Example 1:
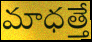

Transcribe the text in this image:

మాధత్తే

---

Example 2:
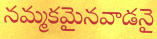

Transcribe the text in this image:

నమ్మకమైనవాడనై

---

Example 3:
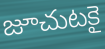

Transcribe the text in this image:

జూచుటకై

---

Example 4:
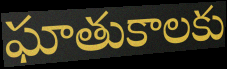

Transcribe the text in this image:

ఘాతుకాలకు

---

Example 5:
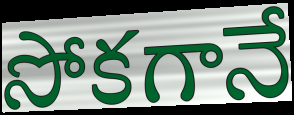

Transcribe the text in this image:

సోకగానే